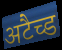
अटैच्ड